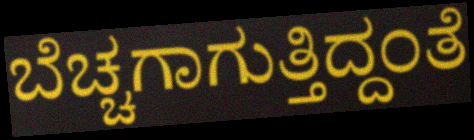
ಬೆಚ್ಚಗಾಗುತ್ತಿದ್ದಂತೆ